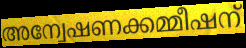
അന്വേഷണക്കമ്മീഷന്